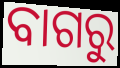
ବାଗରୁ